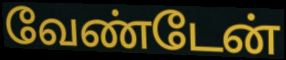
வேண்டேன்